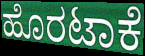
ಹೊರಟಾಕೆ